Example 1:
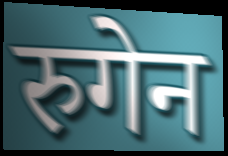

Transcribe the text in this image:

रुगेन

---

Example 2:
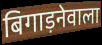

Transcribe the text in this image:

बिगाड़नेवाला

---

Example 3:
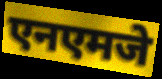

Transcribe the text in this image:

एनएमजे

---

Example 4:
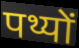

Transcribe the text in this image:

पथ्यों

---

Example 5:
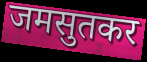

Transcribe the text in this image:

जमसुतकर